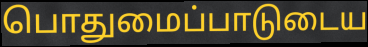
பொதுமைப்பாடுடைய